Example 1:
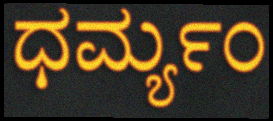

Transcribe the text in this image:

ಧರ್ಮ್ಯಂ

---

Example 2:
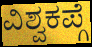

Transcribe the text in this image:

ವಿಶ್ವಕಪ್ಗೆ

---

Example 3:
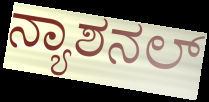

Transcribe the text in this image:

ನ್ಯಾಶನಲ್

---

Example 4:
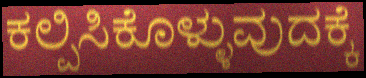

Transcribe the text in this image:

ಕಲ್ಪಿಸಿಕೊಳ್ಳುವುದಕ್ಕೆ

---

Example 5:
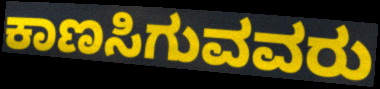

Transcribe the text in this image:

ಕಾಣಸಿಗುವವರು